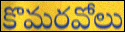
కొమరవోలు